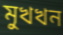
মুখখন